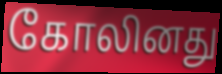
கோலினது